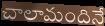
చాలామందినే